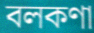
বলকণা